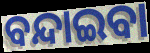
ବନ୍ଦାଇବା